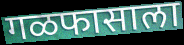
गळफासाला